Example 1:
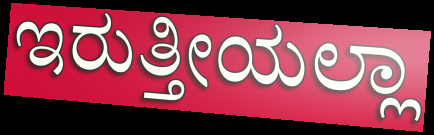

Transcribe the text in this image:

ಇರುತ್ತೀಯಲ್ಲಾ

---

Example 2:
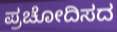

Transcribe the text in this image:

ಪ್ರಚೋದಿಸದ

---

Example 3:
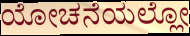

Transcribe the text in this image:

ಯೋಚನೆಯಲ್ಲೋ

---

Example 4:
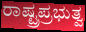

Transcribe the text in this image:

ರಾಷ್ಟ್ರಪ್ರಭುತ್ವ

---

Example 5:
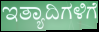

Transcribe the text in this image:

ಇತ್ಯಾದಿಗಳಿಗೆ